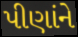
પીણાંને